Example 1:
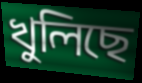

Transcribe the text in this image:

খুলিছে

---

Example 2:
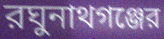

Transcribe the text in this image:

রঘুনাথগঞ্জের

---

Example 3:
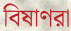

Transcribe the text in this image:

বিষাণরা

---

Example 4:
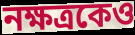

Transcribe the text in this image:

নক্ষত্রকেও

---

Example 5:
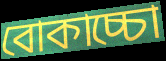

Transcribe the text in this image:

বোকাচ্চো